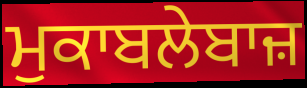
ਮੁਕਾਬਲੇਬਾਜ਼